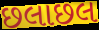
છલાછલ